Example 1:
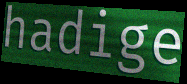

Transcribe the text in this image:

hadige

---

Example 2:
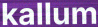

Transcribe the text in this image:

kallum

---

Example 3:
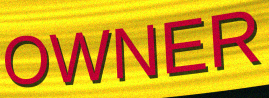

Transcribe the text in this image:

OWNER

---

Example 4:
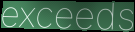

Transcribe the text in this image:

exceeds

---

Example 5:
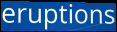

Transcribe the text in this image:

eruptions